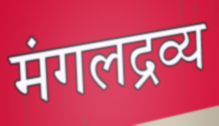
मंगलद्रव्य